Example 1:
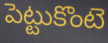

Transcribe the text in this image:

పెట్టుకొంటె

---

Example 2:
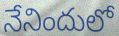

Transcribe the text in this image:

నేనిందులో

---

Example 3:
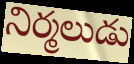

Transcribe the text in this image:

నిర్మలుడు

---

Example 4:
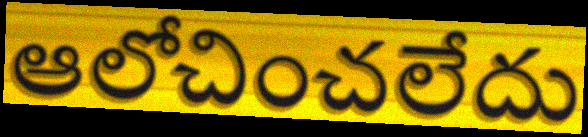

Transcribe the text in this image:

ఆలోచించలేదు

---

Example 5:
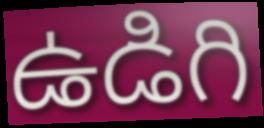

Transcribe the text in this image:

ఉడిగి